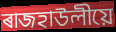
ৰাজহাউলীয়ে